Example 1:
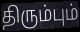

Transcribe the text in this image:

திரும்பும்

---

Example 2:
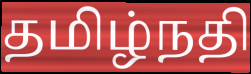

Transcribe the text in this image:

தமிழ்நதி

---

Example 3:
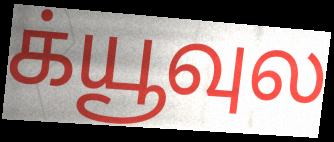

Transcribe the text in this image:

க்யூவுல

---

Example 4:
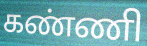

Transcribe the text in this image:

கண்ணி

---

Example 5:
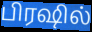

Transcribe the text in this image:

பிரஷில்